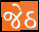
જેઠ